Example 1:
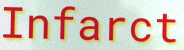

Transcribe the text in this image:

Infarct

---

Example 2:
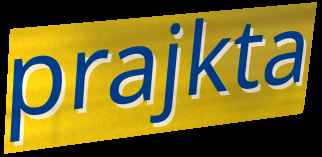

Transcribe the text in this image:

prajkta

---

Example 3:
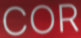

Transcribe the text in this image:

COR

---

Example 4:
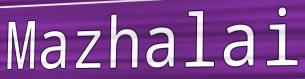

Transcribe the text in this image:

Mazhalai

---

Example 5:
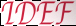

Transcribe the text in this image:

IDEF